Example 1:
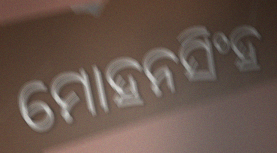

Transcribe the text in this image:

ମୋହନସିଂହ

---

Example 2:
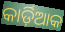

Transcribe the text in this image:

କାର୍ଡ଼ିଆକ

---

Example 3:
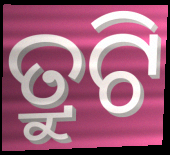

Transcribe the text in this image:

ତ୍ରୁଟି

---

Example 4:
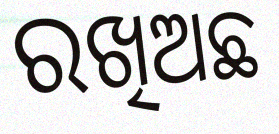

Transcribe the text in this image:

ରଖିଅଛ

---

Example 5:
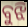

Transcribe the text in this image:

ବୁଝି